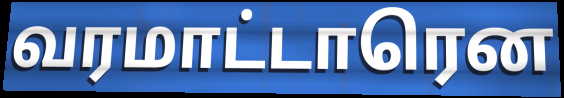
வரமாட்டாரென